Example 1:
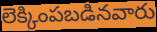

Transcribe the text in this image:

లెక్కింపబడినవారు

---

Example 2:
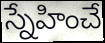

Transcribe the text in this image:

స్నేహించే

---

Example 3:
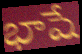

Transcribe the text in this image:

భాషే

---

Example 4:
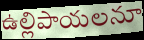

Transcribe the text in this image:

ఉల్లిపాయలనూ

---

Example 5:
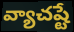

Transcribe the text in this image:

వ్యాచష్టే